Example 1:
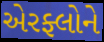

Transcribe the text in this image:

એરફ્લોને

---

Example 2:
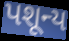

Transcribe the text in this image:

પશૂન્ય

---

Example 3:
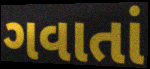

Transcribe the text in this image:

ગવાતાં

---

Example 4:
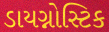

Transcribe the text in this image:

ડાયગ્નોસ્ટિક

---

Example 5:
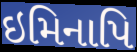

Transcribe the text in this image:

ઇમિનાપિ